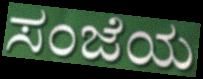
ಸಂಜೆಯ